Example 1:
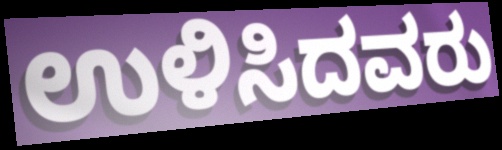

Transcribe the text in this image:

ಉಳಿಸಿದವರು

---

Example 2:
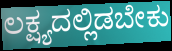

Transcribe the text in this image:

ಲಕ್ಷ್ಯದಲ್ಲಿಡಬೇಕು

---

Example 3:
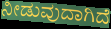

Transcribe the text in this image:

ನೀಡುವುದಾಗಿದೆ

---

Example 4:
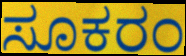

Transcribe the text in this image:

ಸೂಕರಂ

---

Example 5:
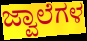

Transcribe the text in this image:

ಜ್ವಾಲೆಗಳ